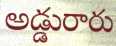
అడ్డురారు